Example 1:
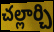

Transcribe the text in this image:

చల్లార్చి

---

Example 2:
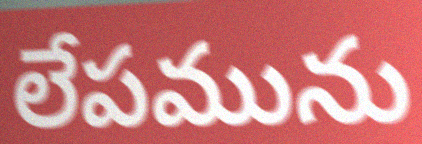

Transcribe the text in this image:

లేపమును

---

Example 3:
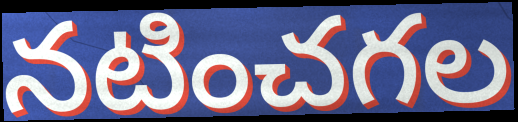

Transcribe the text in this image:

నటించగల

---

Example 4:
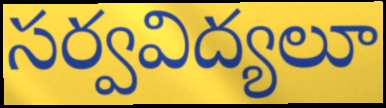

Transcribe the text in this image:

సర్వవిద్యలూ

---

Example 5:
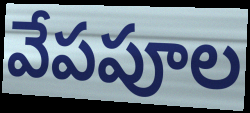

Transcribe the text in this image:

వేపపూల